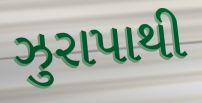
ઝુરાપાથી